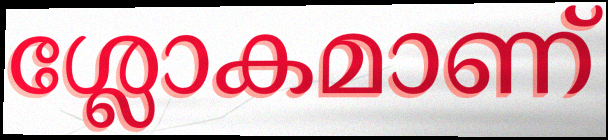
ശ്ലോകമാണ്